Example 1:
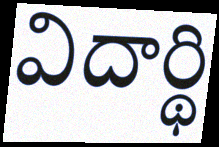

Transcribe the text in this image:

విదార్థి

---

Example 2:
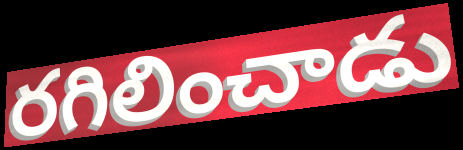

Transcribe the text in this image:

రగిలించాడు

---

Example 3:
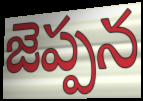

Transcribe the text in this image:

జెప్పన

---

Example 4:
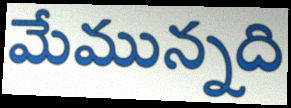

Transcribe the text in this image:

మేమున్నది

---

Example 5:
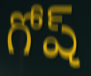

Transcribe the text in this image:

గోష్